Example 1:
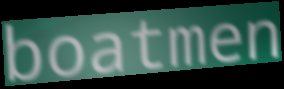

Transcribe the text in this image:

boatmen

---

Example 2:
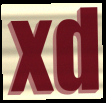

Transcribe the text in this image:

xd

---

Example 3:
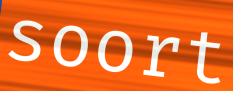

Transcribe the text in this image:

soort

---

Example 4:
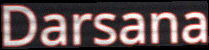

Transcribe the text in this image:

Darsana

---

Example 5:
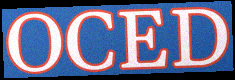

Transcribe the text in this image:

OCED